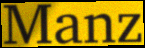
Manz